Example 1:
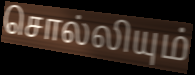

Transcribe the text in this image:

சொல்லியும்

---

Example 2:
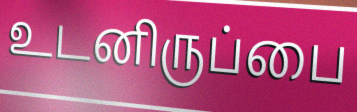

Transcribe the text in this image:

உடனிருப்பை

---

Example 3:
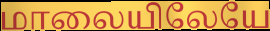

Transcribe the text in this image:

மாலையிலேயே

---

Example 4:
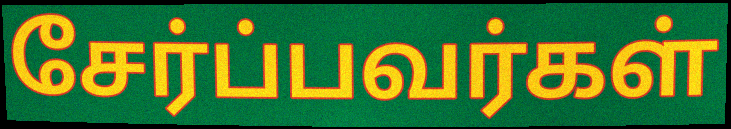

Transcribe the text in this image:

சேர்ப்பவர்கள்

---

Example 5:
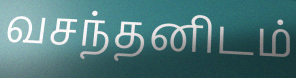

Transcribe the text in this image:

வசந்தனிடம்